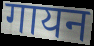
गायन